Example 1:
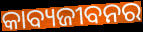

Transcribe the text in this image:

କାବ୍ୟଜୀବନର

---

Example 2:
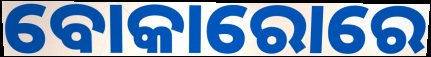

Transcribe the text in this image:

ବୋକାରୋରେ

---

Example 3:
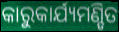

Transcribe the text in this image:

କାରୁକାର୍ଯ୍ୟମଣ୍ଡିତ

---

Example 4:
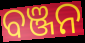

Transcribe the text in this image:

ବଞ୍ଜନ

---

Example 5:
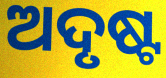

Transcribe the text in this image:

ଅଦୃଷ୍ଟ